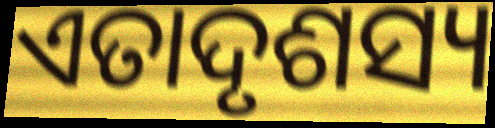
ଏତାଦୃଶସ୍ୟ